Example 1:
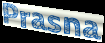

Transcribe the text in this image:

Prasna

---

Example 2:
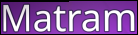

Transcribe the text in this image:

Matram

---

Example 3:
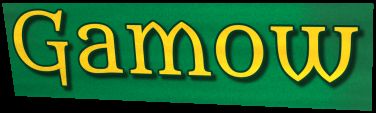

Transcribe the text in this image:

Gamow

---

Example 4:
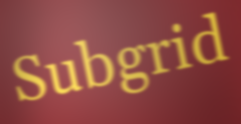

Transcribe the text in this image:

Subgrid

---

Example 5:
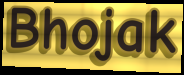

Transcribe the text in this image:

Bhojak